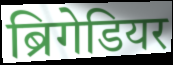
ब्रिगेडियर